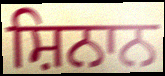
ਸ਼ਿਨਾਨ